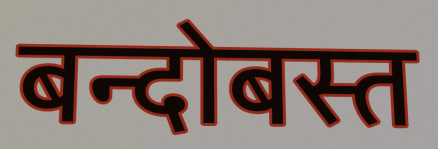
बन्दोबस्त